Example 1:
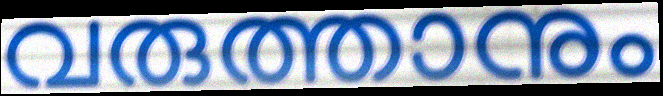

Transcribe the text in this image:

വരുത്താനും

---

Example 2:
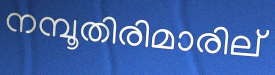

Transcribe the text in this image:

നമ്പൂതിരിമാരില്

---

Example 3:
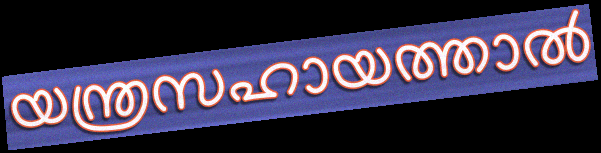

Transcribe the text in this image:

യന്ത്രസഹായത്താൽ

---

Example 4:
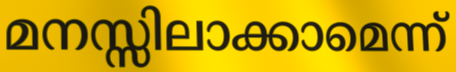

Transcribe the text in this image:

മനസ്സിലാക്കാമെന്ന്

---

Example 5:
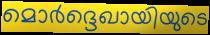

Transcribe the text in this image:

മൊർദ്ദെഖായിയുടെ